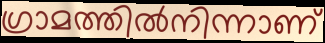
ഗ്രാമത്തിൽനിന്നാണ്